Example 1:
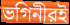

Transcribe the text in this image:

ভগিনীরই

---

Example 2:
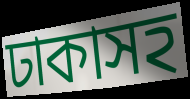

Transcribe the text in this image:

ঢাকাসহ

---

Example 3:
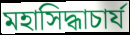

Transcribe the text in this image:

মহাসিদ্ধাচার্য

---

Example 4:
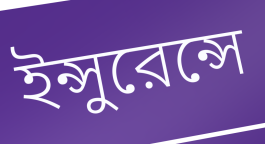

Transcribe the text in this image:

ইন্সুরেন্সে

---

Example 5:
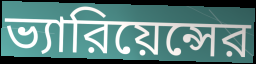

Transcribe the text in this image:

ভ্যারিয়েন্সের